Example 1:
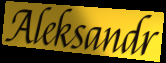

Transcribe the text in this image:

Aleksandr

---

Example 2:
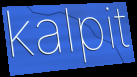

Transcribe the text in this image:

kalpit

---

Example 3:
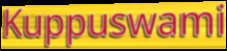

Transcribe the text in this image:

Kuppuswami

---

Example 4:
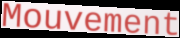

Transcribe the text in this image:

Mouvement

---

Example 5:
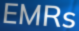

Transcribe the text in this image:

EMRs